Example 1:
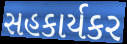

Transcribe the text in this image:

સહકાર્યકર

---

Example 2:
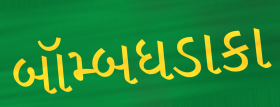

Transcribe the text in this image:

બૉમ્બધડાકા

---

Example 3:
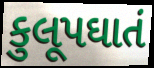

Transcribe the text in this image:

કુલૂપઘાતં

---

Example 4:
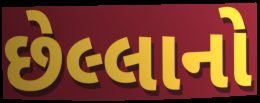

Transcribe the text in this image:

છેલ્લાનો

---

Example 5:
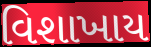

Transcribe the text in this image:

વિશાખાય